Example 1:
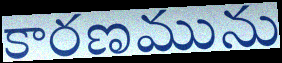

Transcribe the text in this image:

కారణమును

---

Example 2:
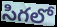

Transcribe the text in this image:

సిగలో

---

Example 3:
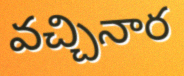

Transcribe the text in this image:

వచ్చినార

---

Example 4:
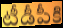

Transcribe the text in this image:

టీడీపీకి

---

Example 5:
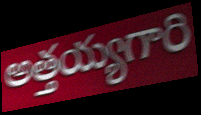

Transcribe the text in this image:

అత్తయ్యగారి